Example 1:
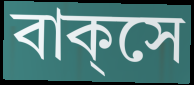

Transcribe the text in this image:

বাক্‌সে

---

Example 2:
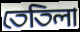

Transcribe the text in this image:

তেতিলা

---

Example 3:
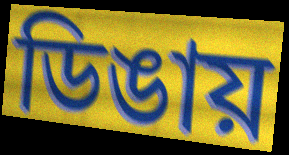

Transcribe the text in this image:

ডিঙায়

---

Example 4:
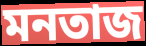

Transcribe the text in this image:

মনতাজ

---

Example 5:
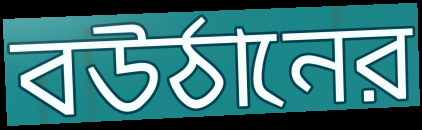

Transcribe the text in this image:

বউঠানের